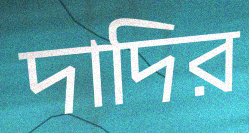
দাদির